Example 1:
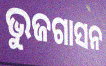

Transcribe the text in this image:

ଭୁଜଗାସନ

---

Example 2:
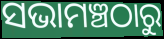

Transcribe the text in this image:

ସଭାମଞ୍ଚଠାରୁ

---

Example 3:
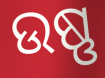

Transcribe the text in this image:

ଉଷ୍ଣ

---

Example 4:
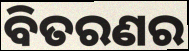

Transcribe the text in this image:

ବିତରଣର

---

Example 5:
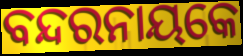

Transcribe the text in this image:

ବନ୍ଦରନାୟକେ